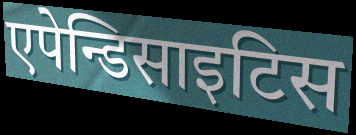
एपेन्डिसाइटिस